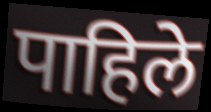
पाहिले